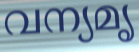
വന്യമൃ